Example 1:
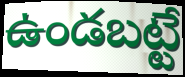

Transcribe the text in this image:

ఉండబట్టే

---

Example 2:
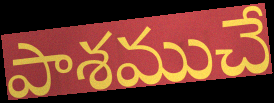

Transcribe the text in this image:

పాశముచే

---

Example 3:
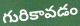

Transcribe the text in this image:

గురికావడం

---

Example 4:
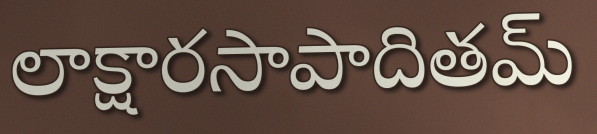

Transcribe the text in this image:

లాక్షారసాపాదితమ్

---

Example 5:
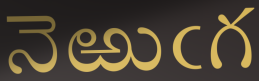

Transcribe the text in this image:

నెఱుఁగ